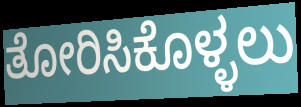
ತೋರಿಸಿಕೊಳ್ಳಲು